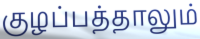
குழப்பத்தாலும்